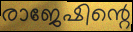
രാജേഷിന്റെ